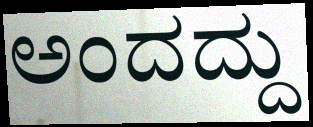
ಅಂದದ್ದು